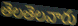
తెలతెలవారు